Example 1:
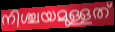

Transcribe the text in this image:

നിശ്ചയമുള്ളത്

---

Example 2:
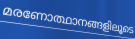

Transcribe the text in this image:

മരണോത്ഥാനങ്ങളിലൂടെ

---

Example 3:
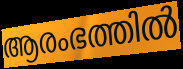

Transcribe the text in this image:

ആരംഭത്തിൽ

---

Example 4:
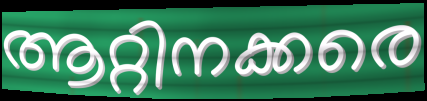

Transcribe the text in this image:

ആറ്റിനക്കരെ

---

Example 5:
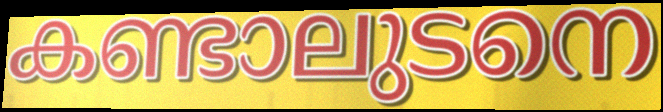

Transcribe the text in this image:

കണ്ടാലുടനെ